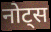
नोट्स